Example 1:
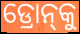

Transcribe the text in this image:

ଡ୍ରୋନ୍‌କୁ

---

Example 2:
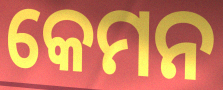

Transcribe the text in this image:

କେମନ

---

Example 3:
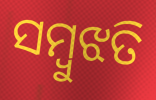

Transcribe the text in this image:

ସମ୍ବୁଝତି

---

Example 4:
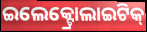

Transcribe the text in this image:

ଇଲେକ୍ଟ୍ରୋଲାଇଟିକ୍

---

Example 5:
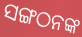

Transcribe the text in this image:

ସଙ୍ଗଠନଙ୍କ